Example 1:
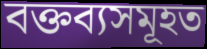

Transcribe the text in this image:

বক্তব্যসমূহত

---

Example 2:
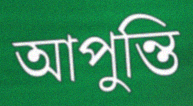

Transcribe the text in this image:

আপুন্তি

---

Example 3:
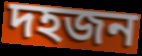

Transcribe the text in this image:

দহজন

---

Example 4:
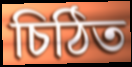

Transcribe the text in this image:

চিঠিত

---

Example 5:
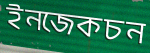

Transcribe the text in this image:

ইনজেকচন